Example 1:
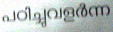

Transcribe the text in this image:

പഠിച്ചുവളർന്ന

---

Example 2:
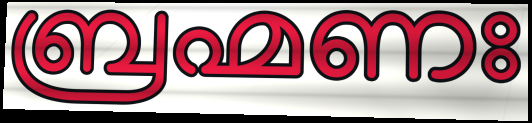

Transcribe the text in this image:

ബ്രഹ്മണഃ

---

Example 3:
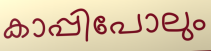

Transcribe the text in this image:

കാപ്പിപോലും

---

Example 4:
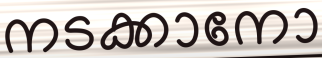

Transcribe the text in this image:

നടക്കാനോ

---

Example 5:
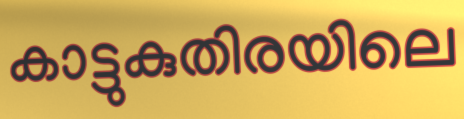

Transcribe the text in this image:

കാട്ടുകുതിരയിലെ